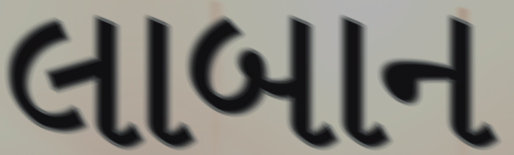
લાબાન